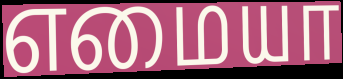
எமையா